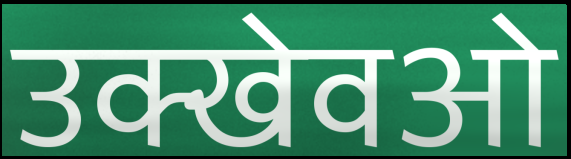
उक्खेवओ